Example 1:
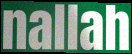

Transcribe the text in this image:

nallah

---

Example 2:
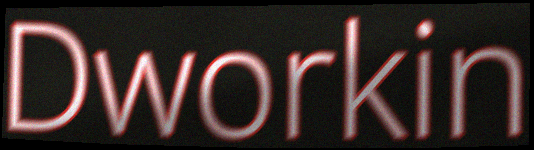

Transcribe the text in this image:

Dworkin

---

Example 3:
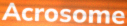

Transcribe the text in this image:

Acrosome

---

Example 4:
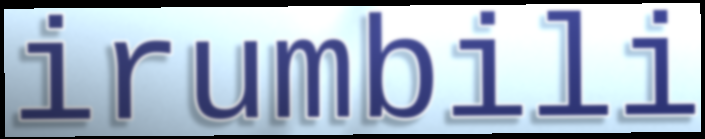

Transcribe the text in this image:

irumbili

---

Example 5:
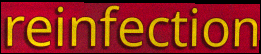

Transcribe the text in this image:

reinfection